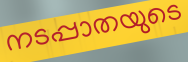
നടപ്പാതയുടെ